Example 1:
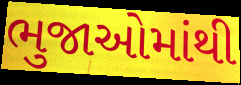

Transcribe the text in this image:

ભુજાઓમાંથી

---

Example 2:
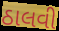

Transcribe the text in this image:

ઠાલવી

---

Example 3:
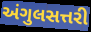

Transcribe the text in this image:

અંગુલસત્તરી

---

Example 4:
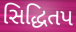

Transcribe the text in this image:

સિદ્ધિતપ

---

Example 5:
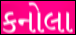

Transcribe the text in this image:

કનોલા